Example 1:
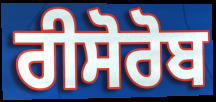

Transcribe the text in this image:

ਰੀਸੋਰੋਬ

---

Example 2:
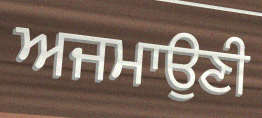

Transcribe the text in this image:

ਅਜਮਾਉਣੀ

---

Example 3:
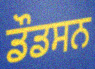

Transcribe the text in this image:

ਡੌਡਸਨ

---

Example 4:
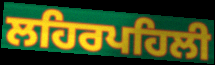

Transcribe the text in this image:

ਲਹਿਰਪਹਿਲੀ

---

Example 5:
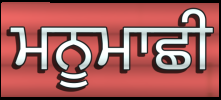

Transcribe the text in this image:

ਮਨੂਮਾਛੀ